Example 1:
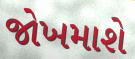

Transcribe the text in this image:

જોખમાશે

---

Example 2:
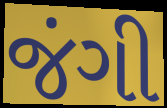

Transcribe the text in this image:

જંગી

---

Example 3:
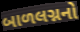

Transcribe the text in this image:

બાળલગ્નનો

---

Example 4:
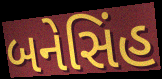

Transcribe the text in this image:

બનેસિંહ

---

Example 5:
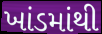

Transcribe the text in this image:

ખાંડમાંથી